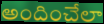
అందించేలా